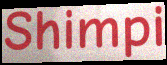
Shimpi